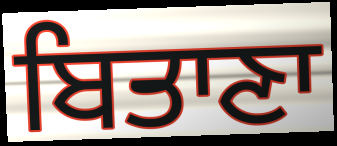
ਬਿਤਾਣਾ